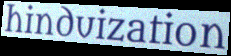
hinduization